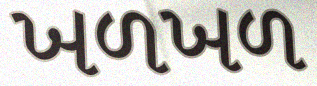
ખળખળ